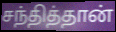
சந்தித்தான்